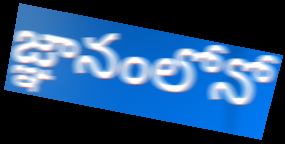
జ్ఞానంలోనో